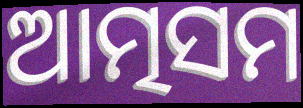
ଆତ୍ମସମ